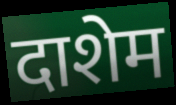
दाशेम